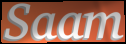
Saam